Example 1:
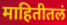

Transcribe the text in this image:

माहितीतलं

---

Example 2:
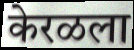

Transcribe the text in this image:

केरळला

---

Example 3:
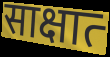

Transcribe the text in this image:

साक्षात्‍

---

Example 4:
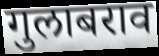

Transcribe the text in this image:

गुलाबराव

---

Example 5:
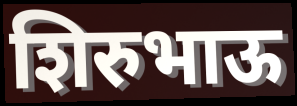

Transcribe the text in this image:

शिरुभाऊ